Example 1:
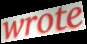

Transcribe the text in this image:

wrote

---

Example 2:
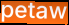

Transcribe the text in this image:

petaw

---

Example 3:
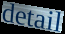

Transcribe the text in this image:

detail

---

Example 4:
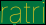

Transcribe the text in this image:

ratri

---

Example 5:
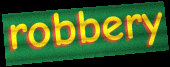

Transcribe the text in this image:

robbery